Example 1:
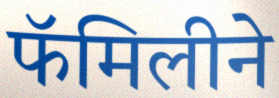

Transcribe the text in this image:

फॅमिलीने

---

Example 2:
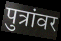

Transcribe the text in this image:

पुत्रांवर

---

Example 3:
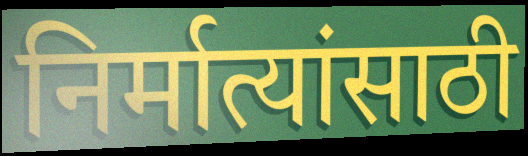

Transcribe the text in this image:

निर्मात्यांसाठी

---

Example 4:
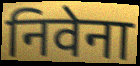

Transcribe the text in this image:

निवेना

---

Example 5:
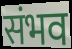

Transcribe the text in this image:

संभव